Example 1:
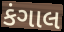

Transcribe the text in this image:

કંગાલ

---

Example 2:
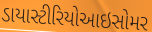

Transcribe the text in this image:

ડાયાસ્ટીરિયોઆઇસોમર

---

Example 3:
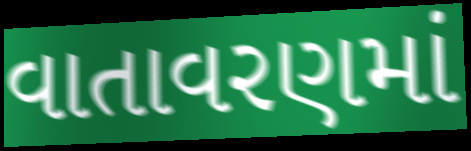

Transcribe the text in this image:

વાતાવરણમાં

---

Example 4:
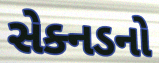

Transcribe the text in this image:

સેક્નડનો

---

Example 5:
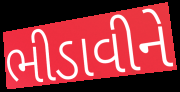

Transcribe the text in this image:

ભીડાવીને